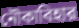
নৌকাবিহার